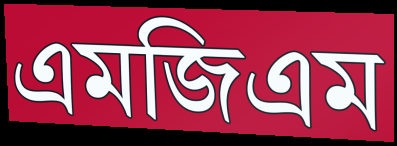
এমজিএম